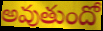
అవుతుందో